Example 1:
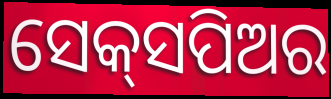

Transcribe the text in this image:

ସେକ୍‌ସପିଅର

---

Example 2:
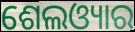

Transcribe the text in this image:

ଶେଲଓ୍ୟାର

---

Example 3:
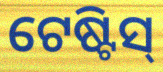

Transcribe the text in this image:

ଟେଷ୍ଟିସ୍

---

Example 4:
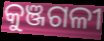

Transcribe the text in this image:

କୁଞ୍ଜଗଳୀ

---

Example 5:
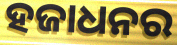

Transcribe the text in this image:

ହଜାଧନର